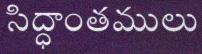
సిద్ధాంతములు